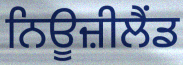
ਨਿਊਜ਼ੀਲੈਂਡ